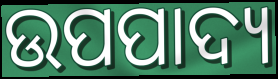
ଉପପାଦ୍ୟ